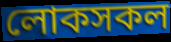
লোকসকল